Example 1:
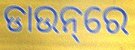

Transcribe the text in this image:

ଡାଉନ୍‌ରେ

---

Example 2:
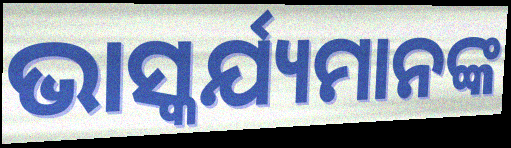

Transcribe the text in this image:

ଭାସ୍କର୍ଯ୍ୟମାନଙ୍କ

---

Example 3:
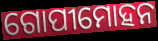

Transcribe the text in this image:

ଗୋପୀମୋହନ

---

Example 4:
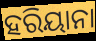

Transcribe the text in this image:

ହରିୟାନା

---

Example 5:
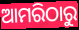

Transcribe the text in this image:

ଆମରିଠାରୁ